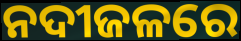
ନଦୀଜଳରେ